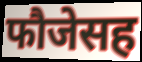
फौजेसह